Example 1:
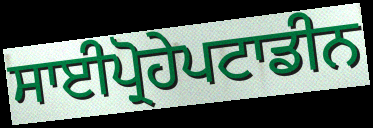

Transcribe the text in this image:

ਸਾਈਪ੍ਰੋਹੇਪਟਾਡੀਨ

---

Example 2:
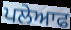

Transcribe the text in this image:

ਪਲੇਆਫ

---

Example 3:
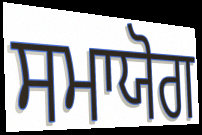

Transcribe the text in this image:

ਸਮਾਯੋਗ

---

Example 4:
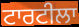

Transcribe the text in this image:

ਟਾਰਟੀਲਾ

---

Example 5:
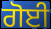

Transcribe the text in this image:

ਗੋਈ